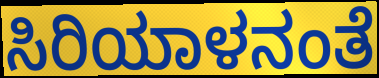
ಸಿರಿಯಾಳನಂತೆ